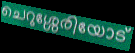
ചെറുശ്ശേരിയോട്